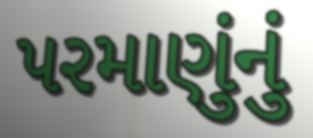
પરમાણુંનું